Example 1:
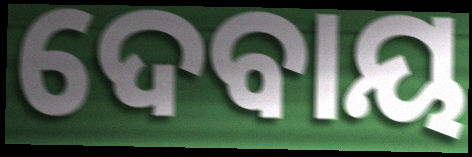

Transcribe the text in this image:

ଦେବାୟ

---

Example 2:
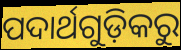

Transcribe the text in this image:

ପଦାର୍ଥଗୁଡ଼ିକରୁ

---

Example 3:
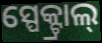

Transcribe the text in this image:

ସ୍ପେକ୍ଟ୍ରାଲ୍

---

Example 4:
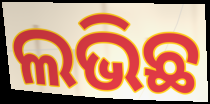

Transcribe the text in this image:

ଲଭିଛ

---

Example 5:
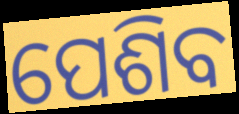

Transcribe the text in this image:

ପେଶିବ